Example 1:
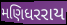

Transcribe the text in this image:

મણિધરરાય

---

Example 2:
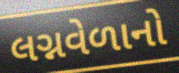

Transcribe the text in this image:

લગ્નવેળાનો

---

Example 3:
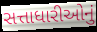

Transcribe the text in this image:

સત્તાધારીઓનું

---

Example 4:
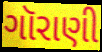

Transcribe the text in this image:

ગૉરાણી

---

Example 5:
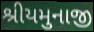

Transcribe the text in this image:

શ્રીયમુનાજી